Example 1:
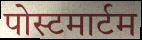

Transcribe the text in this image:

पोस्‍टमार्टम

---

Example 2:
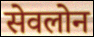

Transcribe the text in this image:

सेवलोन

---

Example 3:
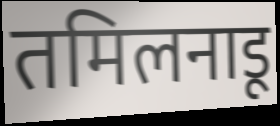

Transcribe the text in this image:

तमिलनाडू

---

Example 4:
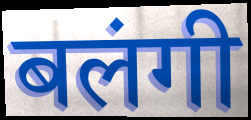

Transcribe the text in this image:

बलंगी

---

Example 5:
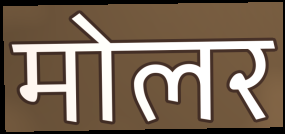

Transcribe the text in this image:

मोलर